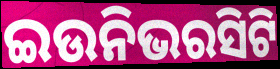
ଇଉନିଭରସିଟି